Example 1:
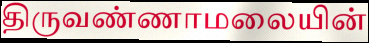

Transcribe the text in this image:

திருவண்ணாமலையின்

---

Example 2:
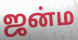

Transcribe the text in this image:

ஜன்ம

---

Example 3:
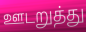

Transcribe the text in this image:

ஊடறுத்து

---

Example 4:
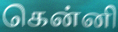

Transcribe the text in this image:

கென்னி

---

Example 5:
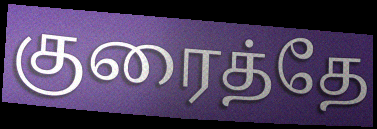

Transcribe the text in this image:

குரைத்தே